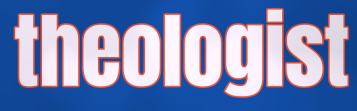
theologist